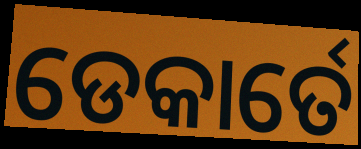
ଡେକାର୍ତେ